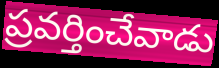
ప్రవర్తించేవాడు